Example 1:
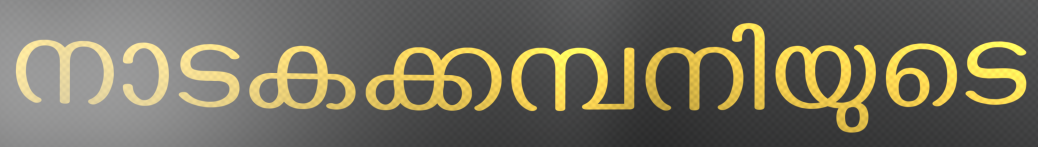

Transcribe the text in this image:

നാടകക്കമ്പനിയുടെ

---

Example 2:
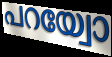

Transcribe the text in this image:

പറയ്വോ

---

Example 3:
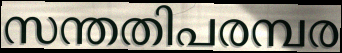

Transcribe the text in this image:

സന്തതിപരമ്പര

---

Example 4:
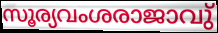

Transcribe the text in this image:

സൂര്യവംശരാജാവു്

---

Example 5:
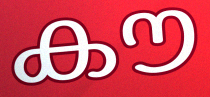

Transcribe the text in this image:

കൗ